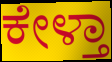
ಕೇಳ್ತಾ